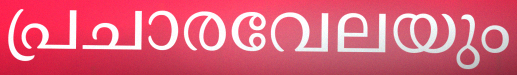
പ്രചാരവേലയും